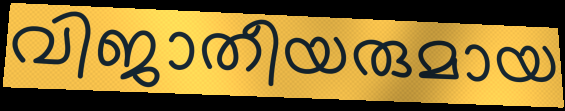
വിജാതീയരുമായ